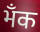
भँक